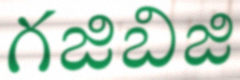
గజిబిజి